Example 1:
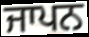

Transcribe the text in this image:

ਜਾਪਨ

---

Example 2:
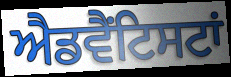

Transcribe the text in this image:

ਐਡਵੈਂਟਿਸਟਾਂ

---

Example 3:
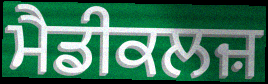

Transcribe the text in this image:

ਮੈਡੀਕਲਜ਼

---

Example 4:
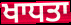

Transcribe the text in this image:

ਖਾਧਤਾ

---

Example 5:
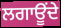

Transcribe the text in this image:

ਲਗਾਊਂਦੇ